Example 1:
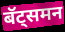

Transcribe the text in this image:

बॅट्समन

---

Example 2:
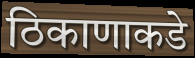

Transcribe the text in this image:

ठिकाणाकडे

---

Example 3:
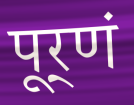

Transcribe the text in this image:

पूर्णं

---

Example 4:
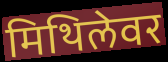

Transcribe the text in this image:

मिथिलेवर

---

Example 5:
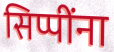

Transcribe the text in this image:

सिप्पींना